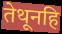
तेथूनहि